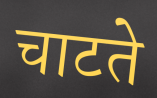
चाटते